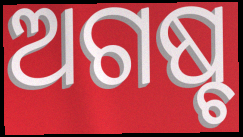
ଅଗଷ୍ଚ